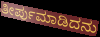
ತೀರ್ಪುಮಾಡಿದನು